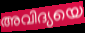
അവിദ്യയെ